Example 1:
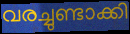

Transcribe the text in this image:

വരച്ചുണ്ടാക്കി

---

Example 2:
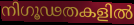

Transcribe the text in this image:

നിഗൂഢതകളിൽ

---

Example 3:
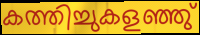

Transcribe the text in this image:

കത്തിച്ചുകളഞ്ഞു്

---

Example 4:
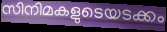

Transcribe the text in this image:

സിനിമകളുടെയടക്കം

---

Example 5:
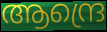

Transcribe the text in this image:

ആന്ദ്രെ